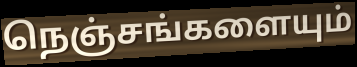
நெஞ்சங்களையும்